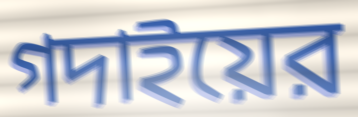
গদাইয়ের